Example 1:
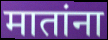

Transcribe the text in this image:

मातांना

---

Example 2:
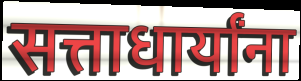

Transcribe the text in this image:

सत्ताधार्यांना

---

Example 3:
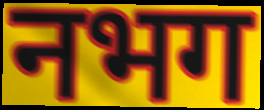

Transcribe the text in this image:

नभग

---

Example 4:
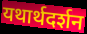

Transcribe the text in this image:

यथार्थदर्शन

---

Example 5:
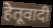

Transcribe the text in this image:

हेतूवादी